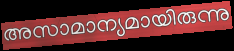
അസാമാന്യമായിരുന്നു